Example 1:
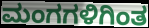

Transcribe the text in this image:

ಮಂಗಗಳಿಗಿಂತ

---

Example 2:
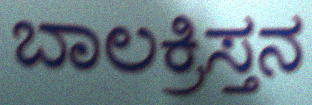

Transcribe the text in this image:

ಬಾಲಕ್ರಿಸ್ತನ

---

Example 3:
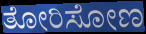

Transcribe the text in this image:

ತೋರಿಸೋಣ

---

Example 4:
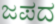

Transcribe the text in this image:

ಜಪದ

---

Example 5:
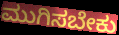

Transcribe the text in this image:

ಮುಗಿಸಬೇಕು